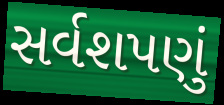
સર્વશપણું